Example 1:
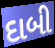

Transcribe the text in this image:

દાબી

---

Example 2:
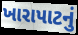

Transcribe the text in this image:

ખારાપાટનું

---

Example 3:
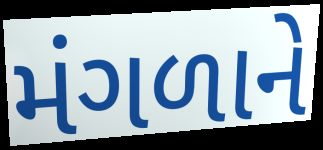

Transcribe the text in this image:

મંગળાને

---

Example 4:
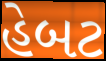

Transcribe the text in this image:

હેબટ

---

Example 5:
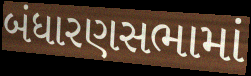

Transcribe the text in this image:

બંધારણસભામાં